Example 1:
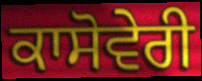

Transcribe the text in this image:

ਕਾਸੋਵੇਰੀ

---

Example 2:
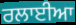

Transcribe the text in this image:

ਰਲਾਈਆ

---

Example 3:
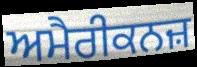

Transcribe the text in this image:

ਅਮੈਰੀਕਨਜ਼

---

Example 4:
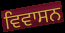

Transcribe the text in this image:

ਵਿਵਾਸਨ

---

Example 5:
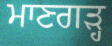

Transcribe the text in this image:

ਮਾਣਗੜ੍ਹ